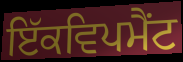
ਇੱਕਵਿਪਮੈਂਟ